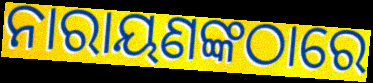
ନାରାୟଣଙ୍କଠାରେ